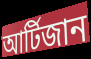
আর্টিজান